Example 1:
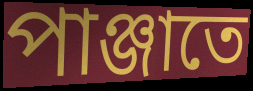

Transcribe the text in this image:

পাঞ্জাতে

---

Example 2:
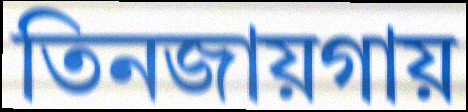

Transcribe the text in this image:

তিনজায়গায়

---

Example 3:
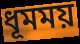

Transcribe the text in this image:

ধূমময়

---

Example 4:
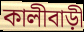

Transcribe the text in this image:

কালীবাড়ী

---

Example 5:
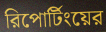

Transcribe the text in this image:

রিপোর্টিংয়ের